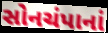
સોનચંપાનાં